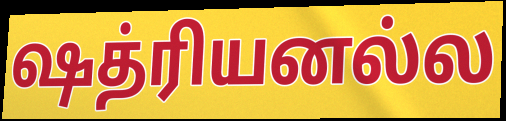
ஷத்ரியனல்ல